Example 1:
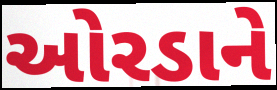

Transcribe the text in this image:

ઓરડાને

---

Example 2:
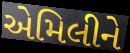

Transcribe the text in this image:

એમિલીને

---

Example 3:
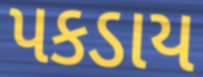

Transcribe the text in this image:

પકડાય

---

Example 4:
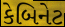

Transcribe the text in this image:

કેબિનેટ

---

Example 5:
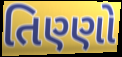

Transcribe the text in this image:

તિણ્ણો